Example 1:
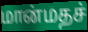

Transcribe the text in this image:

மான்மதச்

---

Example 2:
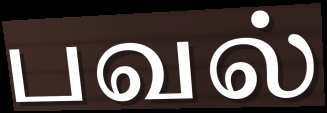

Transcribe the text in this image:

பவல்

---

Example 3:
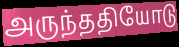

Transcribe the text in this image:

அருந்ததியோடு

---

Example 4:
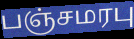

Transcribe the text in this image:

பஞ்சமரபு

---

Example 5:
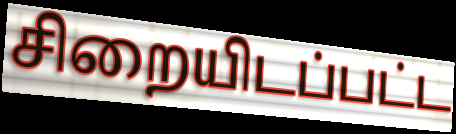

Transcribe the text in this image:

சிறையிடப்பட்ட